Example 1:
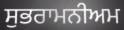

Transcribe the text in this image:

ਸੁਭਰਾਮਨੀਅਮ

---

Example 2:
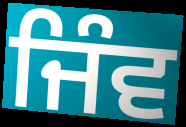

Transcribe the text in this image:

ਜਿੰਵ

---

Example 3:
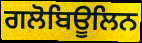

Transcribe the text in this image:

ਗਲੋਬਿਊਲਿਨ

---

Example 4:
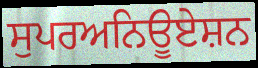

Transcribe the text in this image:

ਸੁਪਰਅਨਿਊਏਸ਼ਨ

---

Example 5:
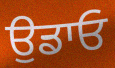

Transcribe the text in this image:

ਉਡਾਓ